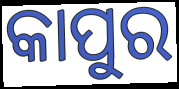
କାପୁର